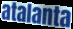
atalanta